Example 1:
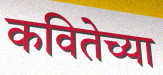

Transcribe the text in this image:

कवितेच्या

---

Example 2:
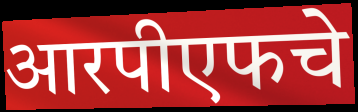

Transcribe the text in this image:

आरपीएफचे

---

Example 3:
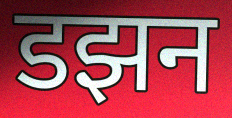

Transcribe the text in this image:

डझन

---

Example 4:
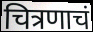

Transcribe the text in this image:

चित्रणाचं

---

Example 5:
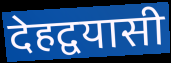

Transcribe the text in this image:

देहद्वयासी